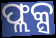
ଫ୍ଲକ୍ସ